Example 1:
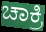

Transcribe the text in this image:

ಚಾಕ್ರಿ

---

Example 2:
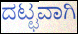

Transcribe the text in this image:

ದಟ್ಟವಾಗಿ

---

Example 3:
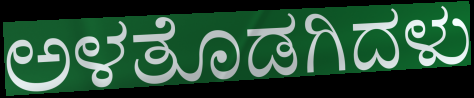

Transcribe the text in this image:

ಅಳತೊಡಗಿದಳು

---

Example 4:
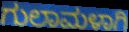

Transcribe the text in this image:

ಗುಲಾಮಳಾಗಿ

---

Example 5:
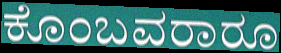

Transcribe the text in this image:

ಕೊಂಬವರಾರೂ